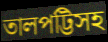
তালপট্টিসহ